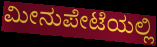
ಮೀನುಪೇಟೆಯಲ್ಲಿ